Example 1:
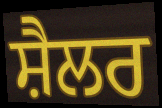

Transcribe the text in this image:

ਸ਼ੈਲਰ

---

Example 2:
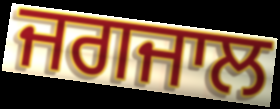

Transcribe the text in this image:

ਜਗਜਾਲ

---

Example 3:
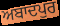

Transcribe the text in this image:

ਅਬਾਦਪੁਰ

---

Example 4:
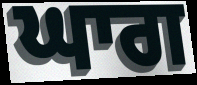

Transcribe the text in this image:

ਘਾਗ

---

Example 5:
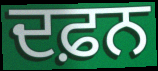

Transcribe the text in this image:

ਦਫ਼ਨ